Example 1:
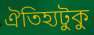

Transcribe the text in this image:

ঐতিহ্যটুকু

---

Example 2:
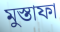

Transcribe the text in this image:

মুস্তাফা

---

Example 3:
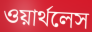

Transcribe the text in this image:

ওয়ার্থলেস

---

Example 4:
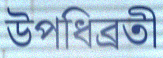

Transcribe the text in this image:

উপধিব্রতী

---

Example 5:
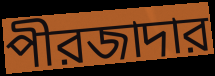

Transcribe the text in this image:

পীরজাদার